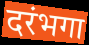
दरंभगा